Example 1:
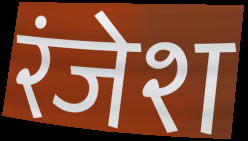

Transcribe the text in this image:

रंजेश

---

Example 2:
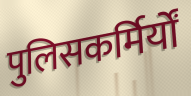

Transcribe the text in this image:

पुलिसकर्मिर्यों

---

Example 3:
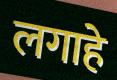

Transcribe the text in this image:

लगाहे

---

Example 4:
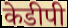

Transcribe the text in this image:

केडीपी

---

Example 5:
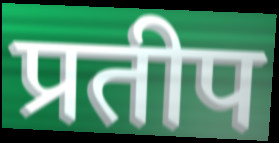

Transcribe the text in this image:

प्रतीप